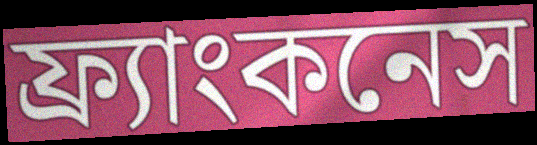
ফ্র্যাংকনেস